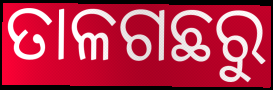
ତାଳଗଛରୁ